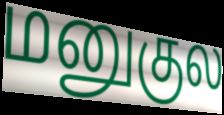
மனுகுல